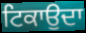
ਟਿਕਾਉਦਾ